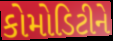
કોમોડિટીને